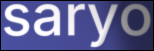
saryo